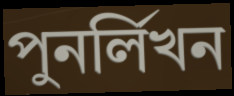
পুনর্লিখন